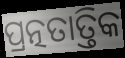
ପ୍ରତ୍ନତାତ୍ତିକ